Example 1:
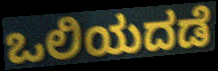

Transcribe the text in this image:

ಒಲಿಯದಡೆ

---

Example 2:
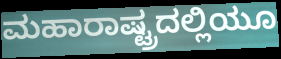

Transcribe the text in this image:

ಮಹಾರಾಷ್ಟ್ರದಲ್ಲಿಯೂ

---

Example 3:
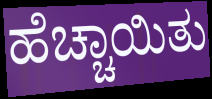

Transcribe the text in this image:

ಹೆಚ್ಚಾಯಿತು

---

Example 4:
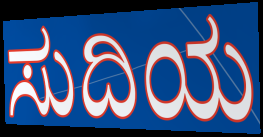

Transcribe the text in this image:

ಸುದಿಯ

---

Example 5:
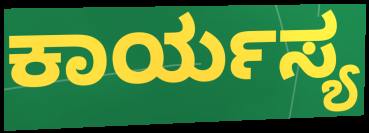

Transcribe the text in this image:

ಕಾರ್ಯಸ್ಯ